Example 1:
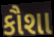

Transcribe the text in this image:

કૌશા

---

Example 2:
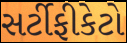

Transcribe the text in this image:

સર્ટીફીકેટો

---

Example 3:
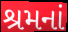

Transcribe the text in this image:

શ્રમનાં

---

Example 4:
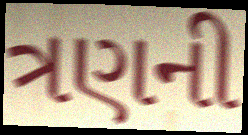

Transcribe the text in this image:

ત્રણની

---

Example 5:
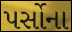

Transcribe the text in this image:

પર્સોના